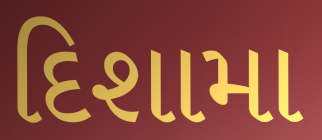
દિશામા